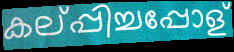
കല്പ്പിച്ചപ്പോള്